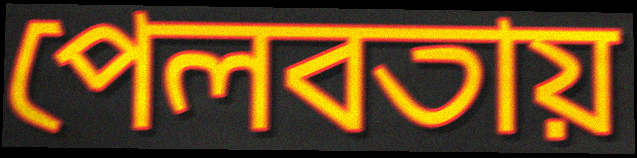
পেলবতায়